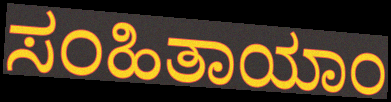
ಸಂಹಿತಾಯಾಂ